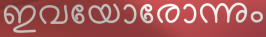
ഇവയോരോന്നും